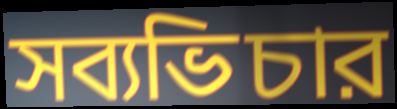
সব্যভিচার